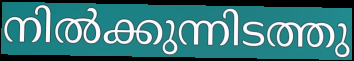
നിൽക്കുന്നിടത്തു